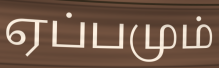
ஏப்பமும்